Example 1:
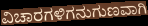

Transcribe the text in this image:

ವಿಚಾರಗಳಿಗನುಗುಣವಾಗಿ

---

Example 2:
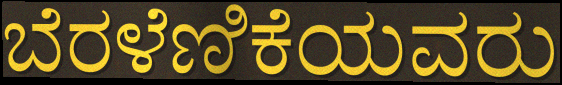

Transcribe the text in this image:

ಬೆರಳೆಣಿಕೆಯವರು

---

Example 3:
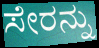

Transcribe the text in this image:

ಸೇರನ್ನು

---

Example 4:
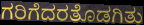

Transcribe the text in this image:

ಗರಿಗೆದರತೊಡಗಿತು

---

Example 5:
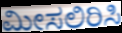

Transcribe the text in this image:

ಮೀಸಲಿರಿಸಿ